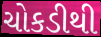
ચોકડીથી